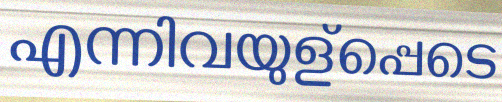
എന്നിവയുള്പ്പെടെ